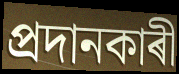
প্ৰদানকাৰী